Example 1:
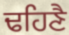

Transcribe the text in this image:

ਢਹਿਣੈ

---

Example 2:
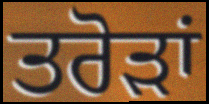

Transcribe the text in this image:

ਤਰੋੜਾਂ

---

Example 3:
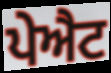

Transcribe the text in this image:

ਪੇਐਟ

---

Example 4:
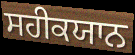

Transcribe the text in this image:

ਸਹੀਕਯਾਨ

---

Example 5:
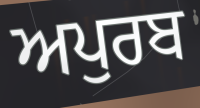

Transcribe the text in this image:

ਅਪੁਰਬ